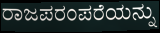
ರಾಜಪರಂಪರೆಯನ್ನು